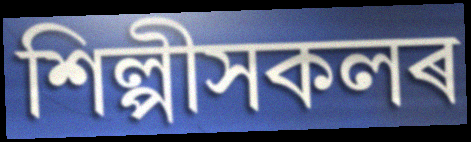
শিল্পীসকলৰ